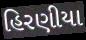
હિરણીયા